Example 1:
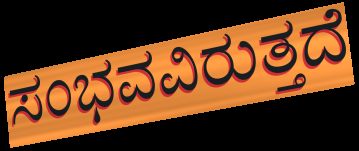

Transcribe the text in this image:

ಸಂಭವವಿರುತ್ತದೆ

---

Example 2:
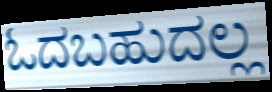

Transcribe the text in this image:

ಓದಬಹುದಲ್ಲ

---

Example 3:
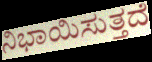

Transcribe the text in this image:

ನಿಭಾಯಿಸುತ್ತದೆ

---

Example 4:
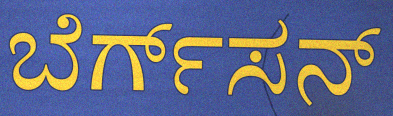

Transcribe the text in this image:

ಬೆರ್ಗ್‌ಸನ್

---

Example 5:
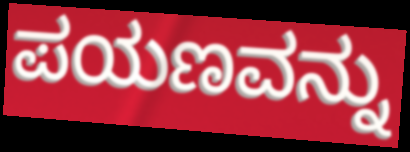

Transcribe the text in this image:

ಪಯಣವನ್ನು